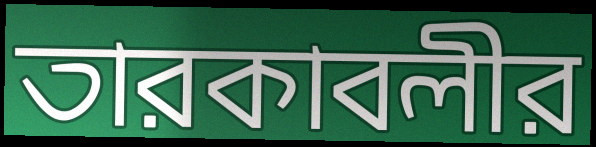
তারকাবলীর